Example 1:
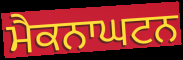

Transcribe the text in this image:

ਮੈਕਨਾਘਟਨ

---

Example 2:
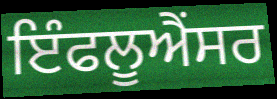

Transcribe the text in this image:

ਇੰਫਲੂਐਂਸਰ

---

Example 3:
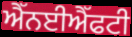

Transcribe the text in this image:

ਐੱਨਈਐੱਫਟੀ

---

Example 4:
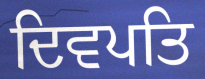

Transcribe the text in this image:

ਦਿਵਪਤਿ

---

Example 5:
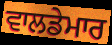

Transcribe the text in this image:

ਵਾਲਡੇਮਾਰ